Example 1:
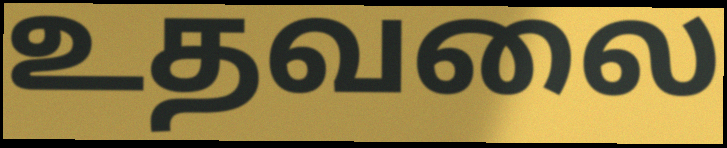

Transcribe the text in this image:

உதவலை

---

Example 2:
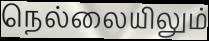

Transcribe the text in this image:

நெல்லையிலும்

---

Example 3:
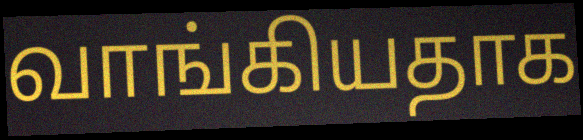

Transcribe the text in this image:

வாங்கியதாக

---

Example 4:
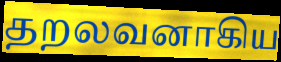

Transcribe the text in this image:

தறலவனாகிய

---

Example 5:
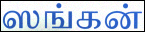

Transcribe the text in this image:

ஸங்கன்